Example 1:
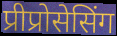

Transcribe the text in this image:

प्रीप्रोसेसिंग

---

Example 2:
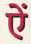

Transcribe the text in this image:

ऐं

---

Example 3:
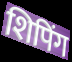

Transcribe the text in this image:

शिपिंग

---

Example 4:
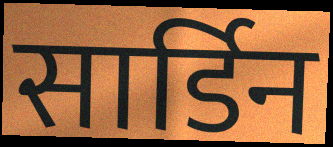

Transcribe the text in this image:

सार्डिन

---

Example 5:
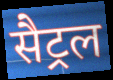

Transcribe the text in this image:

सैट्रल